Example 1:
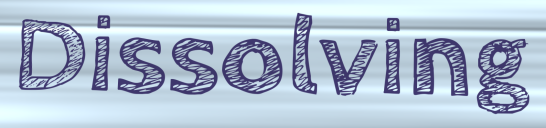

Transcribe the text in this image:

Dissolving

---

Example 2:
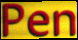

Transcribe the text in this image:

Pen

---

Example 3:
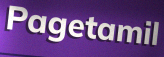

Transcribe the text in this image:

Pagetamil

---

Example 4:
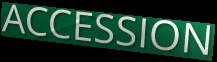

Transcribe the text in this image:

ACCESSION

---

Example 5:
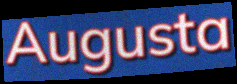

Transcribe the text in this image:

Augusta